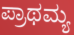
ಪ್ರಾಥಮ್ಯ